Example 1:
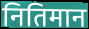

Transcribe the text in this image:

नितिमान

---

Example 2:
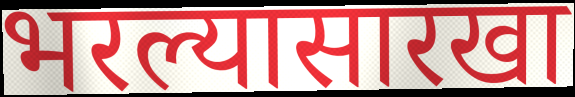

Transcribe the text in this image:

भरल्यासारखा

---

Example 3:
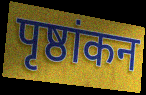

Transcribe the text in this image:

पृष्ठांकन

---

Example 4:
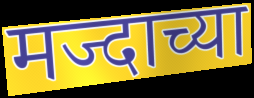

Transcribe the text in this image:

मज्दाच्या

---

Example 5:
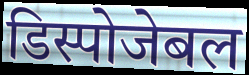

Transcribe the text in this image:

डिस्पोजेबल